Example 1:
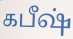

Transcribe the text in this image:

கபீஷ்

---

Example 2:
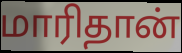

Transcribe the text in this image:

மாரிதான்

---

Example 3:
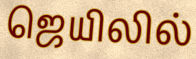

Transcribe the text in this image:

ஜெயிலில்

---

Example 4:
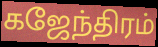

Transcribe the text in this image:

கஜேந்திரம்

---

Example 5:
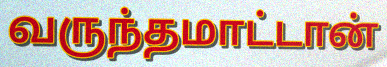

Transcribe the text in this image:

வருந்தமாட்டான்